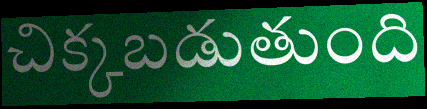
చిక్కబడుతుంది